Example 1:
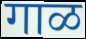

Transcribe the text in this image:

गाळ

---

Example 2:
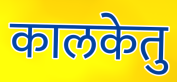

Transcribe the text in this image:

कालकेतु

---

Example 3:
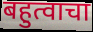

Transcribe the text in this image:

बहुत्वाचा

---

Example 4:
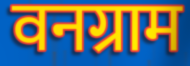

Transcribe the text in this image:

वनग्राम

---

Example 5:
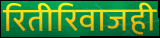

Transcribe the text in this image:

रितीरिवाजही